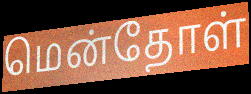
மென்தோள்